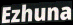
Ezhuna